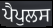
ਪੈਪੁਲਸ